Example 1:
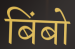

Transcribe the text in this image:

बिंबो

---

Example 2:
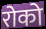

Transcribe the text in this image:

रोको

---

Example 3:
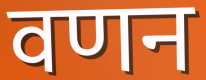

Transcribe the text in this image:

वणन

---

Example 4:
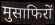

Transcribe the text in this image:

मुसाफिरों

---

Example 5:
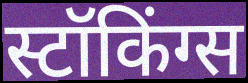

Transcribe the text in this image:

स्टॉकिंग्स